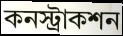
কনস্ট্রাকশন